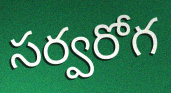
సర్వరోగ